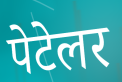
पेटेलर